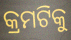
କ୍ରମଟିକୁ